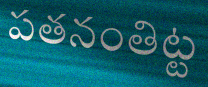
పతనంతిట్ట